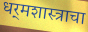
धर्मशास्त्राचा